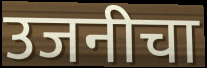
उजनीचा